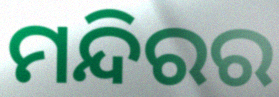
ମନ୍ଦିରର